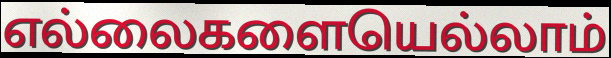
எல்லைகளையெல்லாம்